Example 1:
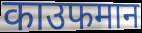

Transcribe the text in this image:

काउफमान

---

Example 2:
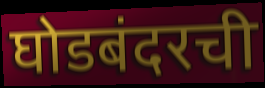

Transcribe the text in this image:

घोडबंदरची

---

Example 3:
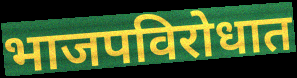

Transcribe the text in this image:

भाजपविरोधात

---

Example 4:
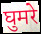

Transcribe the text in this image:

घुमरे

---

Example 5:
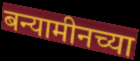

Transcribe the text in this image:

बन्यामीनच्या